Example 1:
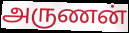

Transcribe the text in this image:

அருணன்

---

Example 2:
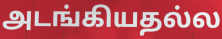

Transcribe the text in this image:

அடங்கியதல்ல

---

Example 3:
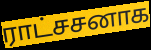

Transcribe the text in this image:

ராட்சசனாக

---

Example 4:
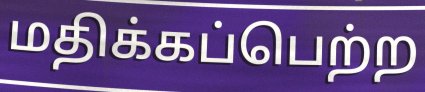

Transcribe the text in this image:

மதிக்கப்பெற்ற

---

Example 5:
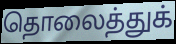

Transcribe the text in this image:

தொலைத்துக்